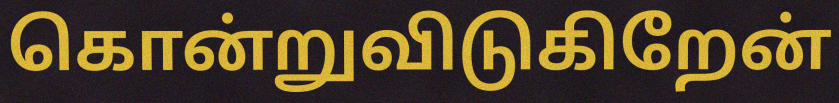
கொன்றுவிடுகிறேன்